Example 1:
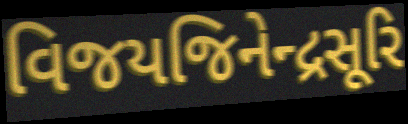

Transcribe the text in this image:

વિજયજિનેન્દ્રસૂરિ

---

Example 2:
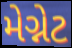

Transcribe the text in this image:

મેગ્નેટ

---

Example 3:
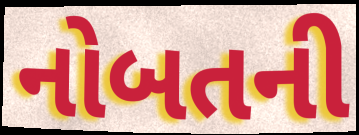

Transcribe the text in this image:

નોબતની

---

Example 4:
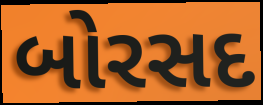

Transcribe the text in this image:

બોરસદ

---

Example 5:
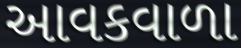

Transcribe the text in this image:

આવકવાળા